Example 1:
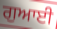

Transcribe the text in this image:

ਗੁਆਈ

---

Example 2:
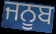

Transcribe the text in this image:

ਜਨੂਬ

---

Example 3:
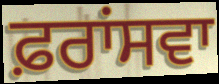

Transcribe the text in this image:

ਫ਼ਰਾਂਸਵਾ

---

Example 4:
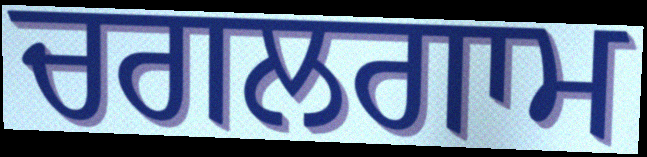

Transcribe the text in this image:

ਚਗਲਗਾਮ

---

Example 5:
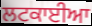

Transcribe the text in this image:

ਲਟਕਾਈਆ